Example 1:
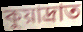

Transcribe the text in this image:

কুয়াদ্রাত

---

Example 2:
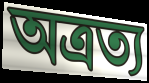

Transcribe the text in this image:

অত্রত্য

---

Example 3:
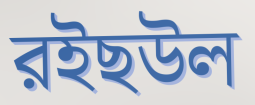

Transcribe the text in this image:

রইছউল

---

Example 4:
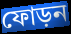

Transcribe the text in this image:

ফোড়ন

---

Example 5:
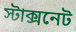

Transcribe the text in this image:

স্টাক্সনেট